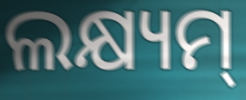
ଲକ୍ଷ୍ୟମ୍